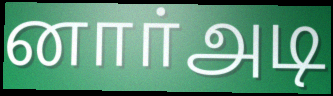
னார்அடி